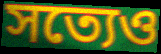
সত্যেও